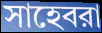
সাহেবরা